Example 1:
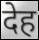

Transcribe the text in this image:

देह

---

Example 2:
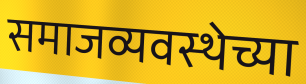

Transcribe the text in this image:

समाजव्यवस्थेच्या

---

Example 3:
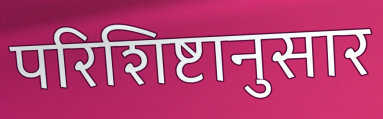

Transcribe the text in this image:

परिशिष्टानुसार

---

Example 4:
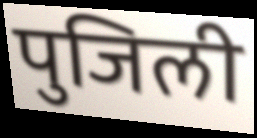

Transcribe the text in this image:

पुजिली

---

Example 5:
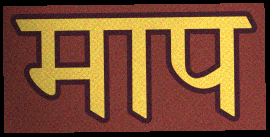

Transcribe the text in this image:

माप